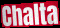
Chalta